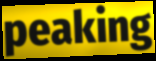
peaking